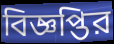
বিজ্ঞপ্তির